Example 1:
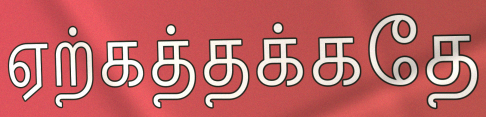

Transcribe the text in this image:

ஏற்கத்தக்கதே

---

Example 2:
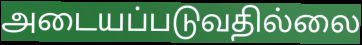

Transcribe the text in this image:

அடையப்படுவதில்லை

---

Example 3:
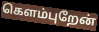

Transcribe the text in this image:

கெளம்புறேன்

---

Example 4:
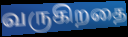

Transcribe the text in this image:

வருகிறதை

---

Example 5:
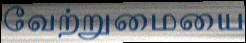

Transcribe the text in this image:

வேற்றுமையை